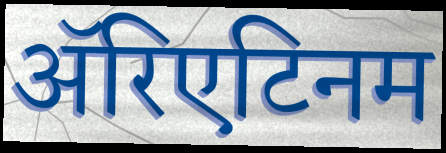
ॲरिएटिनम